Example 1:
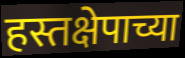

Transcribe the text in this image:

हस्तक्षेपाच्या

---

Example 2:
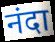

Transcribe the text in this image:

नंदा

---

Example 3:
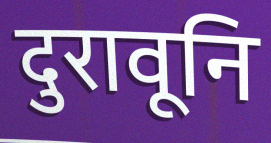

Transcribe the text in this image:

दुरावूनि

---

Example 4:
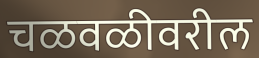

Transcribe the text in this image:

चळवळीवरील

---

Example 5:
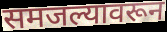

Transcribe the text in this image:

समजल्यावरून